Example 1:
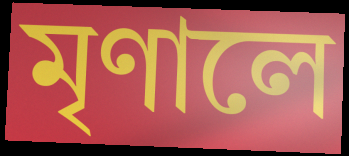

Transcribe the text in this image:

মৃণালে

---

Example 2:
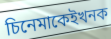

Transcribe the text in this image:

চিনেমাকেইখনক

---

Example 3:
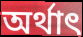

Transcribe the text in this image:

অৰ্থাৎ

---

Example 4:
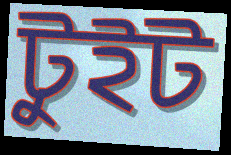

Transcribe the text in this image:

টুইট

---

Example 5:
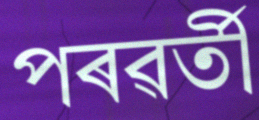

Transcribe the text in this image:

পৰৱৰ্তী